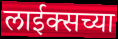
लाईक्सच्या